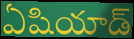
ఏషియాడ్